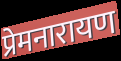
प्रेमनारायण